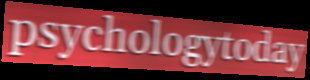
psychologytoday